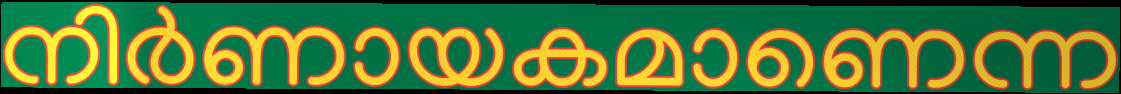
നിർണായകമാണെന്ന